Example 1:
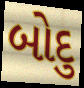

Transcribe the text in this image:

બોદુ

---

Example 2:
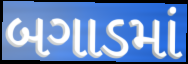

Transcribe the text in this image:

બગાડમાં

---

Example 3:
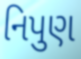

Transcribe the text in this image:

નિપુણ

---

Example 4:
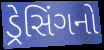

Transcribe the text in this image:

ડ્રેસિંગનો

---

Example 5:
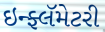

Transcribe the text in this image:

ઇન્ફ્લૅમેટરી